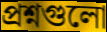
প্রশ্নগুলো